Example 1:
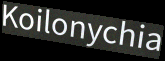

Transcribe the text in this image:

Koilonychia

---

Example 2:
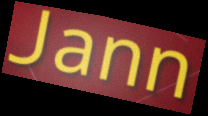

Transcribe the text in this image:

Jann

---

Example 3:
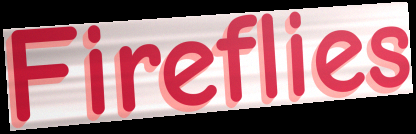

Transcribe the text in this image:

Fireflies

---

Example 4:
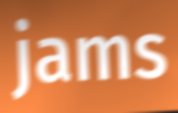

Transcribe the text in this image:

jams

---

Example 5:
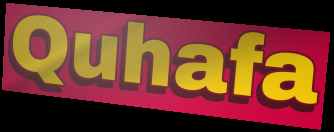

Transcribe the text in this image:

Quhafa